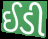
ઈડી